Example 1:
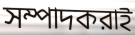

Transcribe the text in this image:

সম্পাদকরাই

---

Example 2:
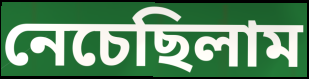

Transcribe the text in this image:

নেচেছিলাম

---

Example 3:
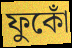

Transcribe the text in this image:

ফুকোঁ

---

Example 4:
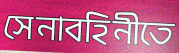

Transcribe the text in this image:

সেনাবহিনীতে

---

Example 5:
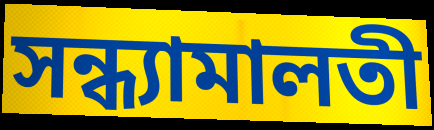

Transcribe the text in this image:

সন্ধ্যামালতী